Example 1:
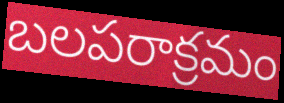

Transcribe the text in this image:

బలపరాక్రమం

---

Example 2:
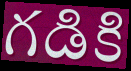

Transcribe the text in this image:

గడికి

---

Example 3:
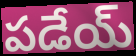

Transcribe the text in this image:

పడేయ్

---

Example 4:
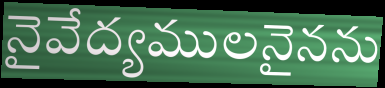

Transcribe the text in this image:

నైవేద్యములనైనను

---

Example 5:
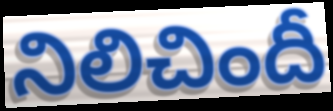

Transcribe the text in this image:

నిలిచిందీ